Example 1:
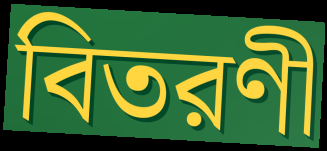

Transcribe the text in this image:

বিতরণী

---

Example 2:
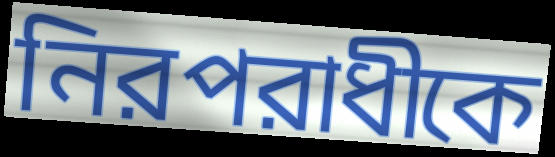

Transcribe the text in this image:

নিরপরাধীকে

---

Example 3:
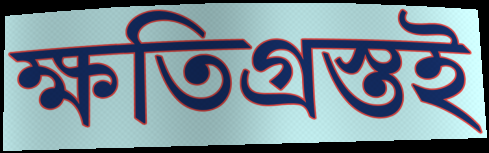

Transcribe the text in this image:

ক্ষতিগ্রস্তই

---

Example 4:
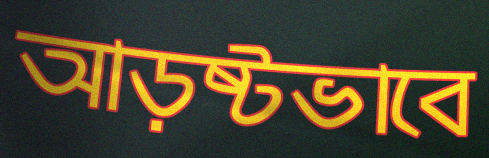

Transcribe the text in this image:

আড়ষ্টভাবে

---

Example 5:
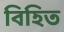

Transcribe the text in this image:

বিহিত